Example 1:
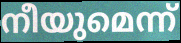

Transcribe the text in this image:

നീയുമെന്ന്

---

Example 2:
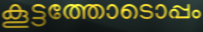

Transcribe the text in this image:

കൂട്ടത്തോടൊപ്പം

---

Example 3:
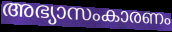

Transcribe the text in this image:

അഭ്യാസംകാരണം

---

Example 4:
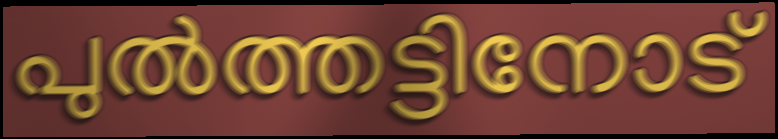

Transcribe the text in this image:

പുൽത്തട്ടിനോട്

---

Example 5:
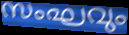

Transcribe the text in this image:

സംഘവും